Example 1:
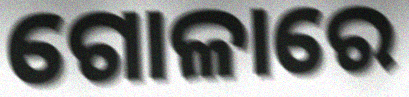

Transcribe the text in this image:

ଗୋଳାରେ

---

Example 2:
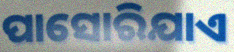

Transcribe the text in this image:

ପାସୋରିଯାଏ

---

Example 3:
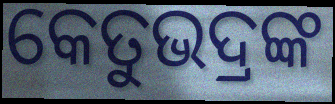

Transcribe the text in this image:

କେତୁଭଦ୍ରଙ୍କ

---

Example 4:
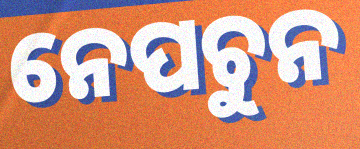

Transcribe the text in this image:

ନେପଚୁନ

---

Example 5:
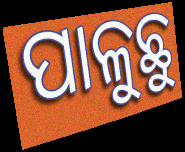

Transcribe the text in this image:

ପାଳୁଛୁ